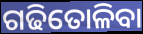
ଗଢିତୋଳିବା